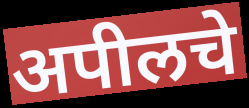
अपीलचे